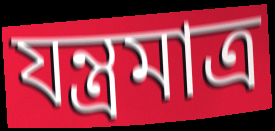
যন্ত্রমাত্র